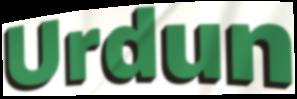
Urdun